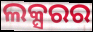
ଲକ୍ସରର